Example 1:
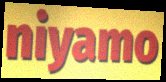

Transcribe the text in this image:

niyamo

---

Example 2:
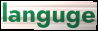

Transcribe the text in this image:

languge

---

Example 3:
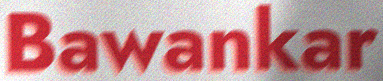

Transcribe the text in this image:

Bawankar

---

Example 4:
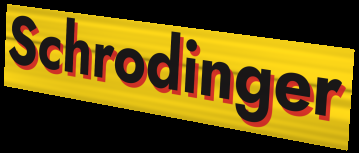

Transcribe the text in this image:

Schrodinger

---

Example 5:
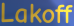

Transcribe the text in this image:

Lakoff